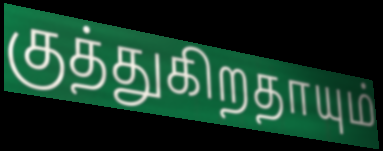
குத்துகிறதாயும்